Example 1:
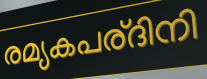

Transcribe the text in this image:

രമ്യകപര്ദിനി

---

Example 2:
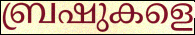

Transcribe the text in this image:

ബ്രഷുകളെ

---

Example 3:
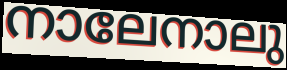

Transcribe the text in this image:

നാലേനാലു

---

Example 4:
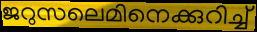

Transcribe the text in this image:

ജറുസലെമിനെക്കുറിച്ച്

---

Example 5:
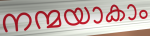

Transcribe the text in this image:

നന്മയാകാം